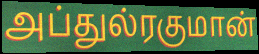
அப்துல்ரகுமான்